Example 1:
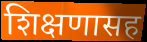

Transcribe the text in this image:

शिक्षणासह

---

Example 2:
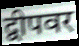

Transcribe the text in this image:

द्वीपवर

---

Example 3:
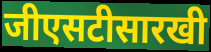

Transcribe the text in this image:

जीएसटीसारखी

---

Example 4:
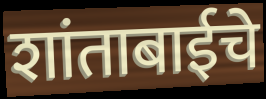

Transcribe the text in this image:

शांताबाईचे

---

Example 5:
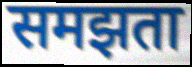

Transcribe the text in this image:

समझता